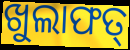
ଖୁଲାଫତ୍